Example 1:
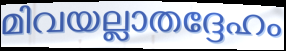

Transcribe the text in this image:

മിവയല്ലാതദ്ദേഹം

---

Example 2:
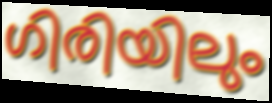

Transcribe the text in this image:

ഗിരിയിലും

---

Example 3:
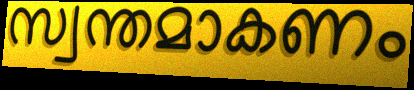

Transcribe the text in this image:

സ്വന്തമാകണം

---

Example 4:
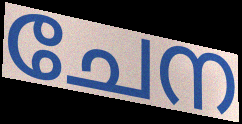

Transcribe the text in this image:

ചേന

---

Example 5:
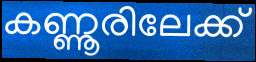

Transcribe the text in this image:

കണ്ണൂരിലേക്ക്